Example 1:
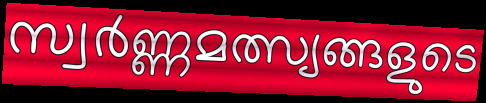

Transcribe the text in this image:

സ്വർണ്ണമത്സ്യങ്ങളുടെ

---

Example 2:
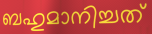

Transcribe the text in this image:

ബഹുമാനിച്ചത്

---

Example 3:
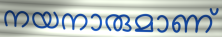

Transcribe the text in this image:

നയനാരുമാണ്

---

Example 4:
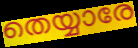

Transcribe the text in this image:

തെയ്യാരേ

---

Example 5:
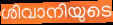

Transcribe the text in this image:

ശിവാനിയുടെ